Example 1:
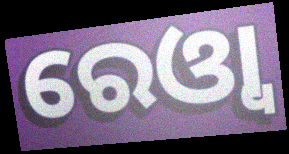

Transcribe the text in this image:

ରେଓ୍ବା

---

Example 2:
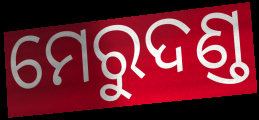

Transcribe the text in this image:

ମେରୁଦଣ୍ଡ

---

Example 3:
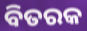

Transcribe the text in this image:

ବିତରକ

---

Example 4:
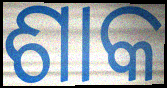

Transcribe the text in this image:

ଶାକ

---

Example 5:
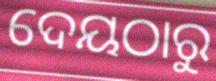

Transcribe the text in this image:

ଦେୟଠାରୁ